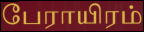
பேராயிரம்